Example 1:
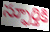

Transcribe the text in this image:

స్ఫూర్తికి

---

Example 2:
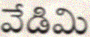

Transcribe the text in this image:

వేడిమి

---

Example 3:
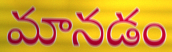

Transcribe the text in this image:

మానడం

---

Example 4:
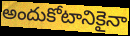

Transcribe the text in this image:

అందుకోటానికైనా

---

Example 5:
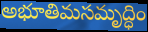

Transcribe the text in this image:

అభూతిమసమృద్ధిం